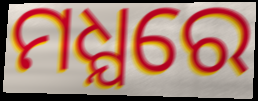
ମଧ୍ଯରେ